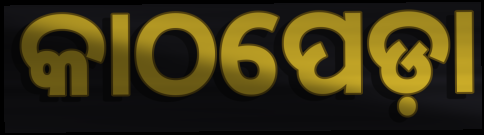
କାଠପେଡ଼ା